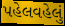
પહેલવહેલું